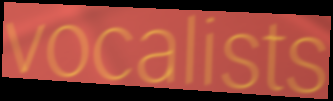
vocalists